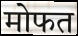
मोफत